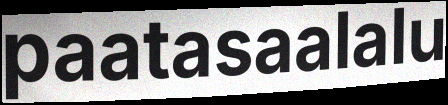
paatasaalalu